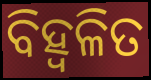
ବିହ୍ୱଳିତ